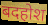
बदहोश